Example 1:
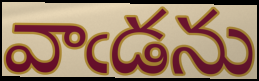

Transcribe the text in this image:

వాఁడను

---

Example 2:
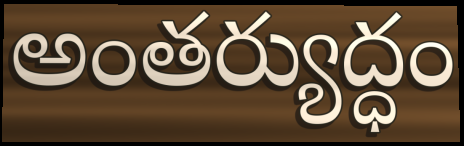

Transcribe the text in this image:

అంతర్యుద్ధం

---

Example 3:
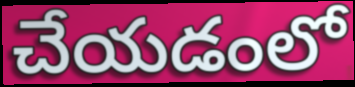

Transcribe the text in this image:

చేయడంలో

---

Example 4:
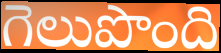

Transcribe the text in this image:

గెలుపొంది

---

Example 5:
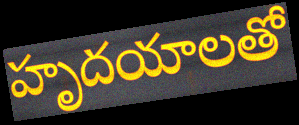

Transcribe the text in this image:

హృదయాలతో